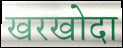
खरखोदा